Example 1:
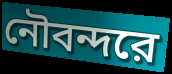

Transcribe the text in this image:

নৌবন্দরে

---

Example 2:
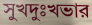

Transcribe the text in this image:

সুখদুঃখভার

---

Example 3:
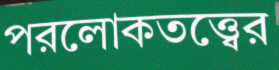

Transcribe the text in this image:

পরলোকতত্ত্বের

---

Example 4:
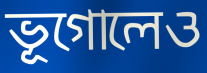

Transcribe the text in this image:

ভূগোলেও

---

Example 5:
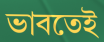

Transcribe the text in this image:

ভাবতেই